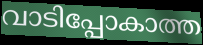
വാടിപ്പോകാത്ത